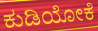
ಕುಡಿಯೋಕೆ